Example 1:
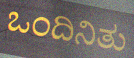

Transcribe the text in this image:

ಒಂದಿನಿತು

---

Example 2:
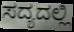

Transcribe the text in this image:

ಸದ್ಯದಲ್ಲಿ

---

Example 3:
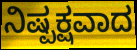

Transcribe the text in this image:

ನಿಷ್ಪಕ್ಷವಾದ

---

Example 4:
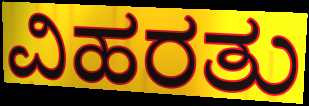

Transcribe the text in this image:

ವಿಹರತು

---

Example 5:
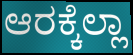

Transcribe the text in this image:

ಆರಕ್ಕೆಲ್ಲಾ